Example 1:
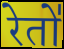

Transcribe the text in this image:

रेतो॑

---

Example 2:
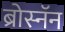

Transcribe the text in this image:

ब्रोस्नॅन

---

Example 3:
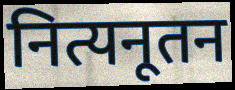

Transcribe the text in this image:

नित्यनूतन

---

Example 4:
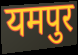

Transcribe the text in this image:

यमपुर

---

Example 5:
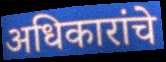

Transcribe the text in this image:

अधिकारांचे